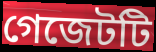
গেজেটটি